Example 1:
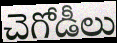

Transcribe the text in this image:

చెగోడీలు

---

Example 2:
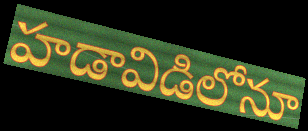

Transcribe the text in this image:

హడావిడిలోనూ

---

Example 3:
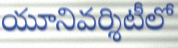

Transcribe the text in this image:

యూనివర్శిటీలో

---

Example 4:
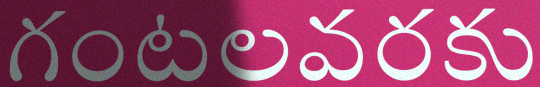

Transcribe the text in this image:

గంటలవరకు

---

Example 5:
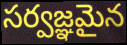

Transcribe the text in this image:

సర్వజ్ఞమైన